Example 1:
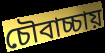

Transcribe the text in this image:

চৌবাচ্চায়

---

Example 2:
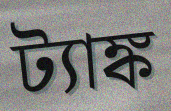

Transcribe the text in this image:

ট্যাঙ্ক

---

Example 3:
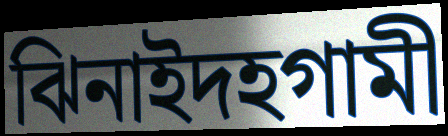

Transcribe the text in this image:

ঝিনাইদহগামী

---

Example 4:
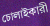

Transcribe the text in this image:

চোলাইকারী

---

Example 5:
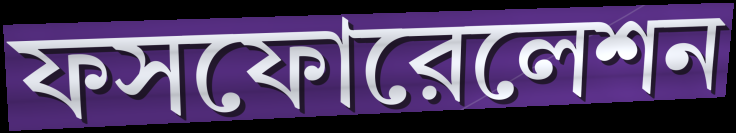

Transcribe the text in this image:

ফসফোরেলেশন